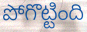
పోగొట్టింది